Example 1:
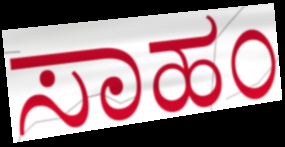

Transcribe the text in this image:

ಸಾಹಂ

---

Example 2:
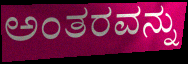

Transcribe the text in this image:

ಅಂತರವನ್ನು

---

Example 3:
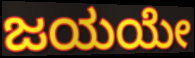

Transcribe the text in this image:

ಜಯಯೇ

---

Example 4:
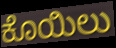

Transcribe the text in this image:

ಕೊಯಿಲು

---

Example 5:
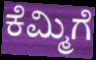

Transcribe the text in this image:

ಕೆಮ್ಮಿಗೆ